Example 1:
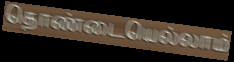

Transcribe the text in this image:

தொண்டையெல்லாம்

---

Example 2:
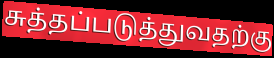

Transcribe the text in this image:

சுத்தப்படுத்துவதற்கு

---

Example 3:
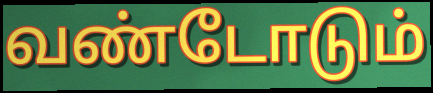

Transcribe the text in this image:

வண்டோடும்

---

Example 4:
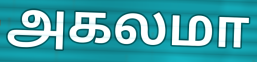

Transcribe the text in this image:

அகலமா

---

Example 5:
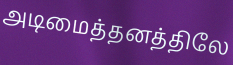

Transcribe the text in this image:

அடிமைத்தனத்திலே